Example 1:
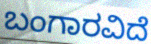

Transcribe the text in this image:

ಬಂಗಾರವಿದೆ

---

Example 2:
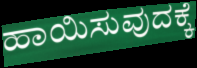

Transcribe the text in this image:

ಹಾಯಿಸುವುದಕ್ಕೆ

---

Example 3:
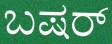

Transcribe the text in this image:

ಬಷರ್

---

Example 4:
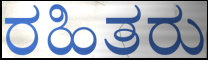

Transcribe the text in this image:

ರಹಿತರು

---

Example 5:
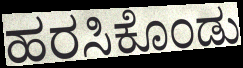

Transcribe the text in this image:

ಹರಸಿಕೊಂಡು